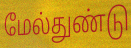
மேல்துண்டு